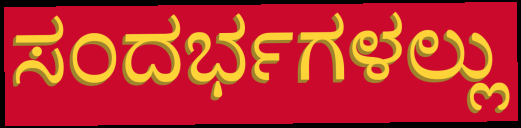
ಸಂದರ್ಭಗಳಲ್ಲು